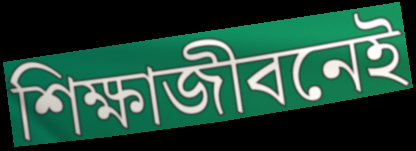
শিক্ষাজীবনেই